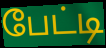
பேட்டி